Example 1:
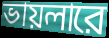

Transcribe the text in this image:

ভায়লারে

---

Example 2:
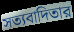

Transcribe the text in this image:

সত্যবাদিতার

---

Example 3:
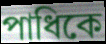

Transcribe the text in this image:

পাধিকে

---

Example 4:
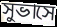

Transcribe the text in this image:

সুভাসে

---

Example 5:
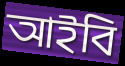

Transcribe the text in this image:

আইবি